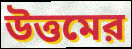
উত্তমের